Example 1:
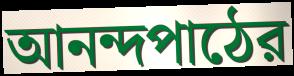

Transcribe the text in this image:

আনন্দপাঠের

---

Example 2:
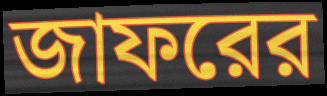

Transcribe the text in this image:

জাফরের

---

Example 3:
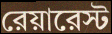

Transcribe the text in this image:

রেয়ারেস্ট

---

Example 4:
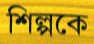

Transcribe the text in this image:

শিল্পকে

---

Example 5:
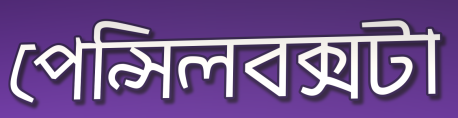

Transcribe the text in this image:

পেন্সিলবক্সটা